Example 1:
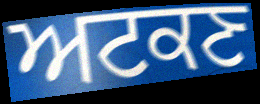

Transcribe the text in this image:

ਅਟਕਣ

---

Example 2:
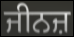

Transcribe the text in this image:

ਜੀਨਜ਼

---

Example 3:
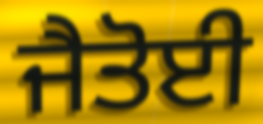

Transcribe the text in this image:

ਜੈਤੋਈ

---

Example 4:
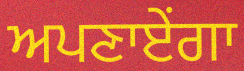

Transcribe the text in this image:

ਅਪਣਾਏਂਗਾ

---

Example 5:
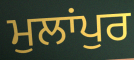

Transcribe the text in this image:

ਮੁਲਾਂਪੁਰ